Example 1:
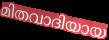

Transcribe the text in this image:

മിതവാദിയായ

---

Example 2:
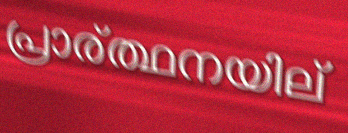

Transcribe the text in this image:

പ്രാര്ത്ഥനയില്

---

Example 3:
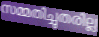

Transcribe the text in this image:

സമ്മതിച്ചുതരില്ല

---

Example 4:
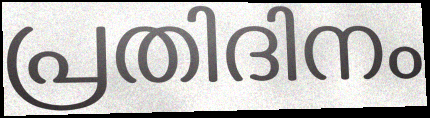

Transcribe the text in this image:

പ്രതിദിനം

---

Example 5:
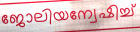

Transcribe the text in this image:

ജോലിയന്വേഷിച്ച്